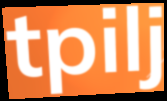
tpilj